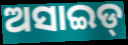
ଅସାଇଡ୍